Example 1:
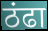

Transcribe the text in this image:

ठंढा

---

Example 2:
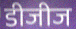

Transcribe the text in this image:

डीजीज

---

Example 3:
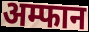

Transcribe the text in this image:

अम्फान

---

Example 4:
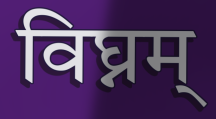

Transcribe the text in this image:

विघ्नम्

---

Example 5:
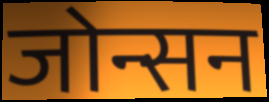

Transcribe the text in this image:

जोन्सन